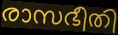
രാസഭീതി